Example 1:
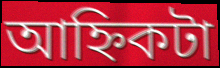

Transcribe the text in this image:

আহ্নিকটা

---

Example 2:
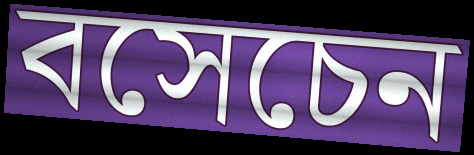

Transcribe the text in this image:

বসেচেন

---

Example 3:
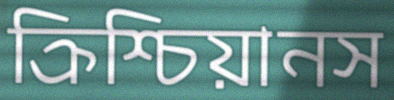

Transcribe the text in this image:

ক্রিশ্চিয়ানস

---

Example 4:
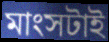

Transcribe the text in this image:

মাংসটাই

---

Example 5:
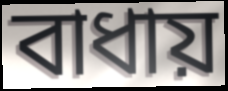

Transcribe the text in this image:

বাধায়